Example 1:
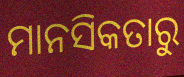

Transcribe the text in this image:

ମାନସିକତାରୁ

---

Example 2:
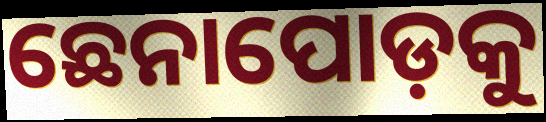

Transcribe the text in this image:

ଛେନାପୋଡ଼କୁ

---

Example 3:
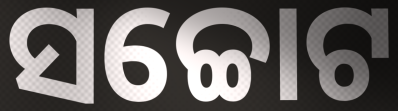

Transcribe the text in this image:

ସଚ୍ଚୋଟ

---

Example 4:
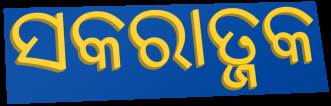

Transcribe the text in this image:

ସକରାତ୍ଜକ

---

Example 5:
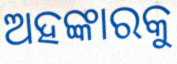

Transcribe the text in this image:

ଅହଙ୍କାରକୁ